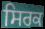
ਸਿਰਕ